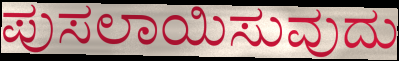
ಪುಸಲಾಯಿಸುವುದು